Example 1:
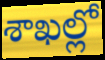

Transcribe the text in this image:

శాఖల్లో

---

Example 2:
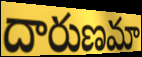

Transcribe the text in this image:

దారుణమా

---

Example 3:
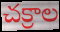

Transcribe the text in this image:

చక్రాల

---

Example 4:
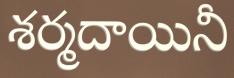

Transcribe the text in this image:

శర్మదాయినీ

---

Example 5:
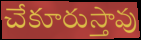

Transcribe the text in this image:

చేకూరుస్తావు